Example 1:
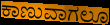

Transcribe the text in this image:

ಕಾಣುವಾಗಲೂ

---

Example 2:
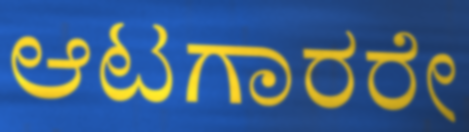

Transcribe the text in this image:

ಆಟಗಾರರೇ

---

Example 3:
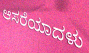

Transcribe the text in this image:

ಆಸರೆಯಾದಳು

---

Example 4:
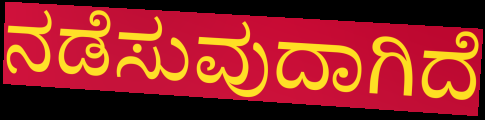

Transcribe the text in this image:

ನಡೆಸುವುದಾಗಿದೆ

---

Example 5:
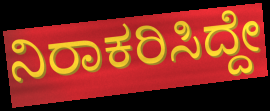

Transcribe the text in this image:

ನಿರಾಕರಿಸಿದ್ದೇ